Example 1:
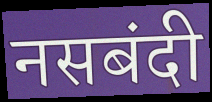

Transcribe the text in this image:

नसबंदी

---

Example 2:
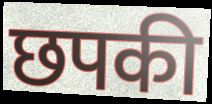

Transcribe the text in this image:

छपकी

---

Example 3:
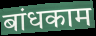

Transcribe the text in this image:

बांधकाम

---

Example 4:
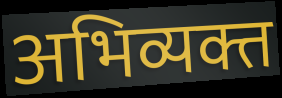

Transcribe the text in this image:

अभिव्यक्त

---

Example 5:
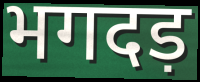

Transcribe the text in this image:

भगदड़